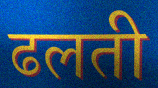
ढलती